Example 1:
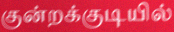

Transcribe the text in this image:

குன்றக்குடியில்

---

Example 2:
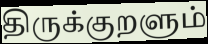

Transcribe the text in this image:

திருக்குறளும்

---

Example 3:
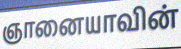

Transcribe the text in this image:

ஞானையாவின்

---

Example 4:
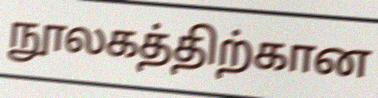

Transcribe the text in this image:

நூலகத்திற்கான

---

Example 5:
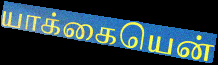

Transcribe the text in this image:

யாக்கையென்